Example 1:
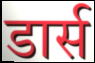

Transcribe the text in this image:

डार्स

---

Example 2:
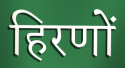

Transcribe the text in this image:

हिरणों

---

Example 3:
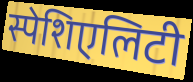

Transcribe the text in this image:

स्पेशिएलिटी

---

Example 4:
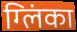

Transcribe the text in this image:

ग्लिंका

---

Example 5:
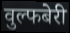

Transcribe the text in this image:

वुल्फबेरी